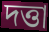
দত্তা